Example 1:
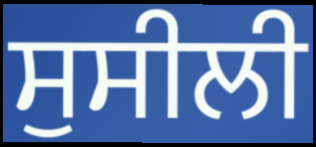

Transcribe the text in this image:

ਸੁਸੀਲੀ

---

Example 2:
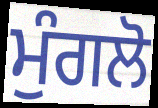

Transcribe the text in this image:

ਮੁੰਗਲੋ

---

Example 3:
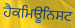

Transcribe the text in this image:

ਹੈਕਮਿਊਨਿਸਟ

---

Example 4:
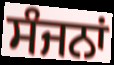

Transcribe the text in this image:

ਸੰਜਨਾਂ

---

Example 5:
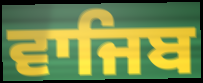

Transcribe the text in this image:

ਵਾਜਿਬ